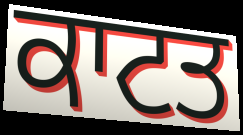
ਕਾਟਤ